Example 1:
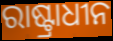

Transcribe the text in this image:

ରାଷ୍ଟ୍ରାଧୀନ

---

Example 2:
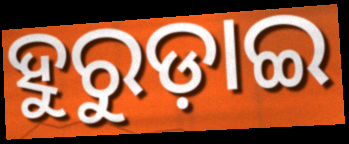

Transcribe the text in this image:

ହୁରୁଡ଼ାଇ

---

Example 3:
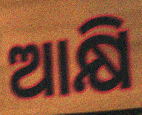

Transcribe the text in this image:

ଆକ୍ଷି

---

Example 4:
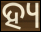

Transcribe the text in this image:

ହ୍ୟ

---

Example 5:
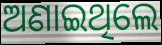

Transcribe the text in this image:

ଅଣାଇଥିଲେ